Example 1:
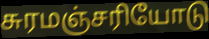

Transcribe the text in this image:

சுரமஞ்சரியோடு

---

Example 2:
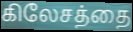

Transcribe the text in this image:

கிலேசத்தை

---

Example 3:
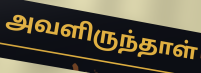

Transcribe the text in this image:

அவளிருந்தாள்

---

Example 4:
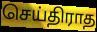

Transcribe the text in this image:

செய்திராத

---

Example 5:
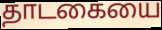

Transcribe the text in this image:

தாடகையை